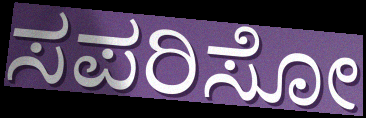
ಸಪರಿಸೋ